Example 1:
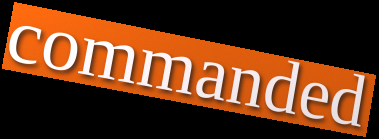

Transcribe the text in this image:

commanded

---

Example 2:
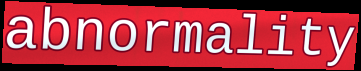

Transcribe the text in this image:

abnormality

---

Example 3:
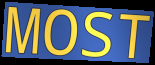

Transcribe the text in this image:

MOST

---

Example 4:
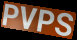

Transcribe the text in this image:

PVPS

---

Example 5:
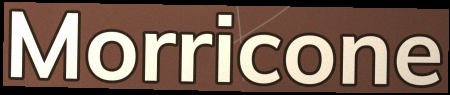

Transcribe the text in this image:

Morricone